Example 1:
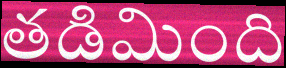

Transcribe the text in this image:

తడిమింది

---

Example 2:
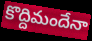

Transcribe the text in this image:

కొద్దిమందేనా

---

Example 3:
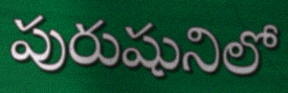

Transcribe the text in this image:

పురుషునిలో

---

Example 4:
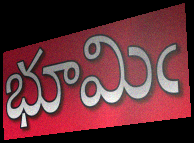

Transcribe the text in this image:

భూమిఁ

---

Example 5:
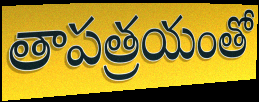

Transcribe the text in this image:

తాపత్రయంతో